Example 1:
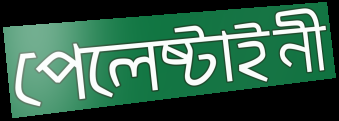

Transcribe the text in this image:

পেলেষ্টাইনী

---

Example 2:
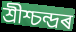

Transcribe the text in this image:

শ্ৰীশ্চন্দ্ৰৰ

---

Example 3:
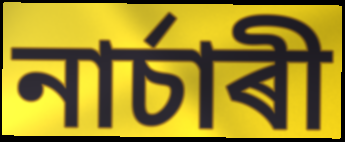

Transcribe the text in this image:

নাৰ্চাৰী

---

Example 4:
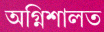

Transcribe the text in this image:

অগ্নিশালত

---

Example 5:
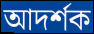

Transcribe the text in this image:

আদৰ্শক